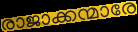
രാജാക്കന്മാരേ